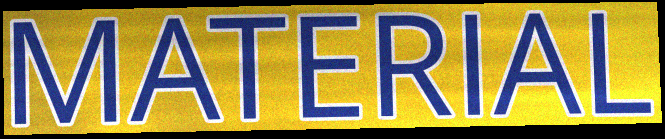
MATERIAL